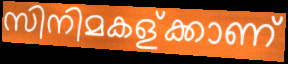
സിനിമകള്ക്കാണ്